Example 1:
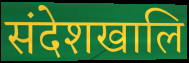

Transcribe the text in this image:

संदेशखालि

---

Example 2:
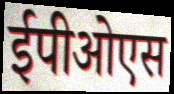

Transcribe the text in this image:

ईपीओएस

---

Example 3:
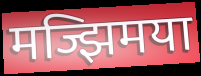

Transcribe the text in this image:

मज्झिमया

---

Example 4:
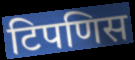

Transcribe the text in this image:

टिपणिस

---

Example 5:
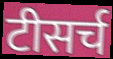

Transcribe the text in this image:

टीसर्च